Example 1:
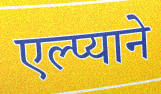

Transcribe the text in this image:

एल्प्याने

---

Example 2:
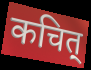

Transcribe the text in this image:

कचित्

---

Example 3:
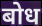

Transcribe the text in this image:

बोध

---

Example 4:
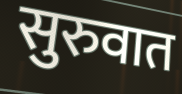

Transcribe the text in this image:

सुरुवात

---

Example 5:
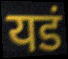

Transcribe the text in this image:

यडं